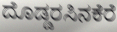
ದೊಡ್ಡರಸಿನಕೆರೆ